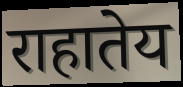
राहातेय